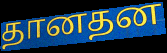
தானதன